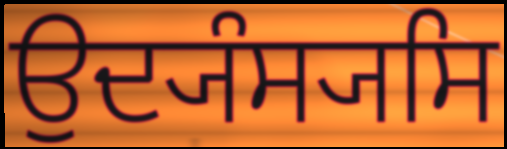
ਉਦ੍ਯੰਸ੍ਯਸਿ